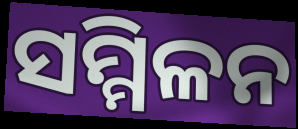
ସମ୍ମିଳନ